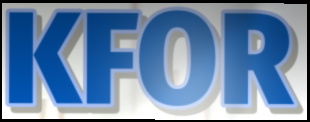
KFOR